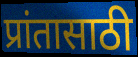
प्रांतासाठी